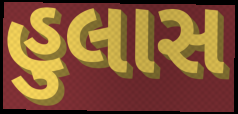
હુલાસ